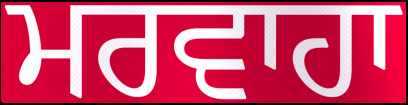
ਮਰਵਾਹਾ